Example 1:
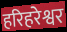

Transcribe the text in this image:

हरिहरेश्वर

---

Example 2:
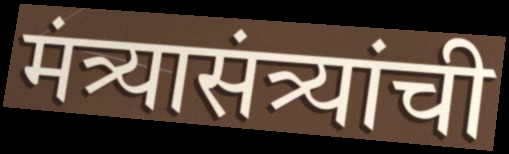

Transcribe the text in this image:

मंत्र्यासंत्र्यांची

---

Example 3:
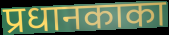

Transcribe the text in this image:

प्रधानकाका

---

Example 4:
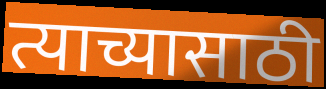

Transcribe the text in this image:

त्याच्यासाठी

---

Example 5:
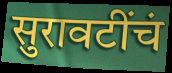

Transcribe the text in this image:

सुरावटींचं